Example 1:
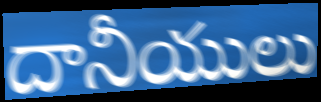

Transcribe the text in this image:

దానీయులు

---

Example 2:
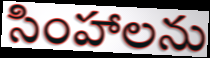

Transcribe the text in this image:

సింహాలను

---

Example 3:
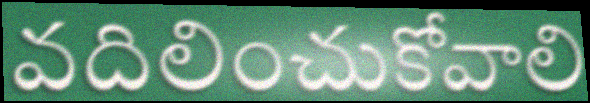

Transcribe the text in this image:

వదిలించుకోవాలి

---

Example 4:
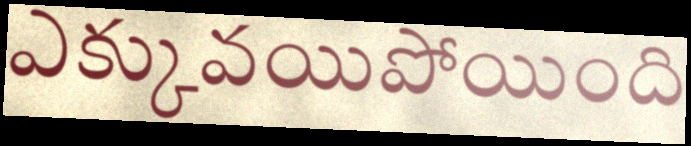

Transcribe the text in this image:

ఎక్కువయిపోయింది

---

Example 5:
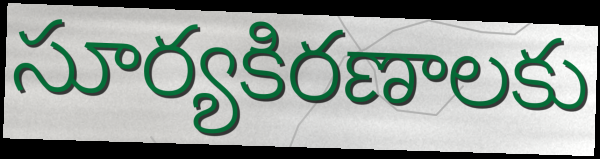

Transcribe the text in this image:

సూర్యకిరణాలకు